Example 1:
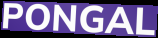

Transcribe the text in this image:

PONGAL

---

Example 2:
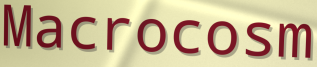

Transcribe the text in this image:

Macrocosm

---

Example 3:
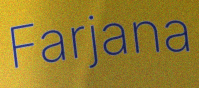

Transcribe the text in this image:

Farjana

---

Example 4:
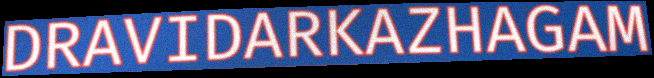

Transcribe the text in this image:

DRAVIDARKAZHAGAM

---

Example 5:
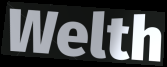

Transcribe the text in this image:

Welth